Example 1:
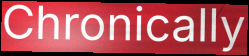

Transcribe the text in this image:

Chronically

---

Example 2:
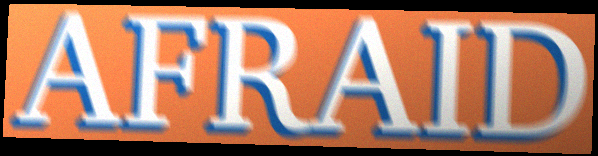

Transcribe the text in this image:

AFRAID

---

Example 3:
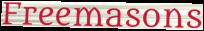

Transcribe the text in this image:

Freemasons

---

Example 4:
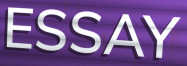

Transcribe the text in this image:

ESSAY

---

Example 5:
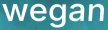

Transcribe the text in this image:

wegan